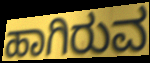
ಹಾಗಿರುವ